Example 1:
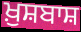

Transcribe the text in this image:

ਖ਼ੁਸ਼ਬਾਸ਼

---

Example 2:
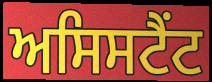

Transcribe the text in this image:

ਅਸਿਸਟੈਂਟ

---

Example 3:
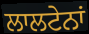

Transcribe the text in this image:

ਲਾਲਟੇਨਾਂ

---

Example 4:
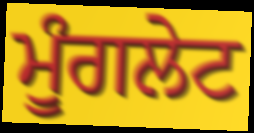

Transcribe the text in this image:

ਮੂੰਗਲੇਟ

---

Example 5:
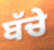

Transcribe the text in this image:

ਬੱਚੇ